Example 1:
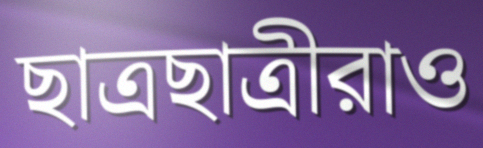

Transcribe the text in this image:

ছাত্রছাত্রীরাও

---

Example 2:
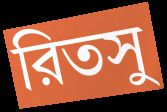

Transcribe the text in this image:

রিতসু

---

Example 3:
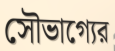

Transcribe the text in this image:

সৌভাগ্যের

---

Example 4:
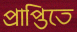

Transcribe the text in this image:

প্রাপ্তিতে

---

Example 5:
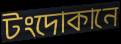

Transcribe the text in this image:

টংদোকানে